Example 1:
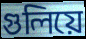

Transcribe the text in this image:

গুলিয়ে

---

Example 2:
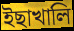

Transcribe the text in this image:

ইছাখালি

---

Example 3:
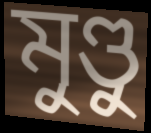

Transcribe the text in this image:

মুণ্ডু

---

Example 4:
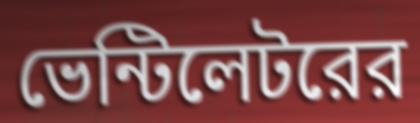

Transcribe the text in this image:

ভেন্টিলেটরের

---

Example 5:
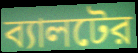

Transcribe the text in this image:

ব্যালটের